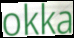
okka